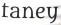
taney